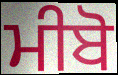
ਮੀਬੋ